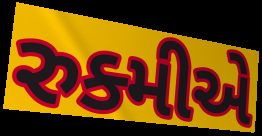
રુક્મીએ